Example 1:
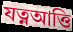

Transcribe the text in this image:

যত্নআত্তি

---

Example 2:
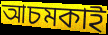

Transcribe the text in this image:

আচমকাই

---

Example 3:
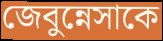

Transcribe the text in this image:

জেবুন্নেসাকে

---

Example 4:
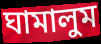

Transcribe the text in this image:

ঘামালুম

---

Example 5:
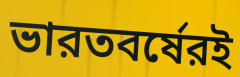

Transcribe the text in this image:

ভারতবর্ষেরই